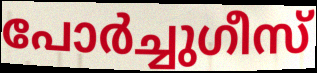
പോർച്ചുഗീസ്